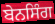
ਬੇਨਸਿੰਗ